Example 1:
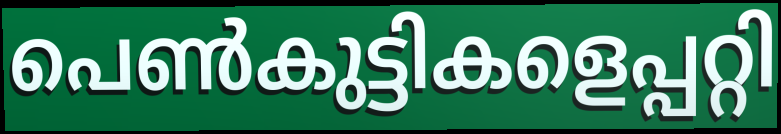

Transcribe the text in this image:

പെൺകുട്ടികളെപ്പറ്റി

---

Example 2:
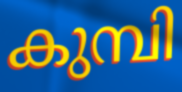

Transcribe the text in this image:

കുമ്പി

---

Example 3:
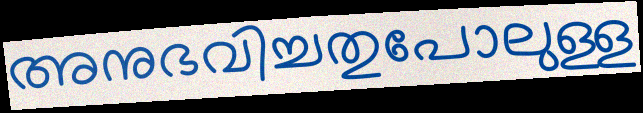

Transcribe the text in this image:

അനുഭവിച്ചതുപോലുള്ള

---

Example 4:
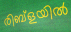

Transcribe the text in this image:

രിബ്ളയിൽ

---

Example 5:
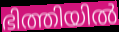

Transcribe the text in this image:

ഭിത്തിയിൽ